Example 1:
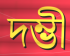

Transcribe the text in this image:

দম্ভী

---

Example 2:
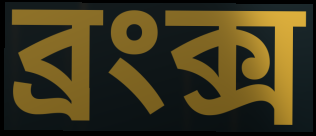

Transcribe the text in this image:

ব্রংক্স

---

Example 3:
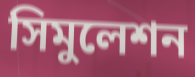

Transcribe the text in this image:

সিমুলেশন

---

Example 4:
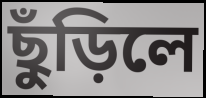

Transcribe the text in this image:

ছুঁড়িলে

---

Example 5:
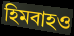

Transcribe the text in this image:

হিমবাহও